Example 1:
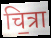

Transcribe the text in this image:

चि॒त्रा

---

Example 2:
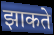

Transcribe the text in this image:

झाकते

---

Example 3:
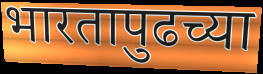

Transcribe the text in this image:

भारतापुढच्या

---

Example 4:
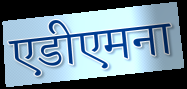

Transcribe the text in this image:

एडीएमना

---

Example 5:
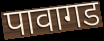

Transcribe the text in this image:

पावागड